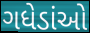
ગધેડાંઓ